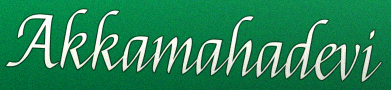
Akkamahadevi